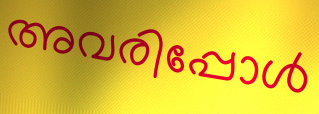
അവരിപ്പോൾ